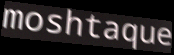
moshtaque